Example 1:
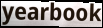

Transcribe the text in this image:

yearbook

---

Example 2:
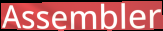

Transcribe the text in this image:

Assembler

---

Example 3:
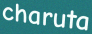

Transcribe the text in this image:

charuta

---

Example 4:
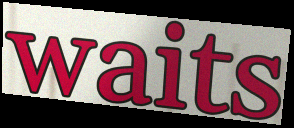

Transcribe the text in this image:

waits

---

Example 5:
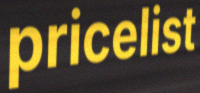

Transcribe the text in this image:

pricelist